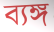
ব্যঙ্গ